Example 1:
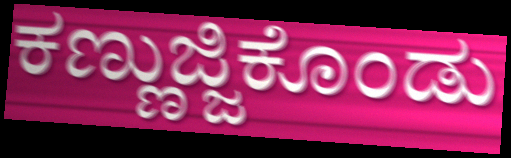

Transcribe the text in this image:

ಕಣ್ಣುಜ್ಜಿಕೊಂಡು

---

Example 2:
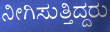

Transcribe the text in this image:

ನೀಗಿಸುತ್ತಿದ್ದರು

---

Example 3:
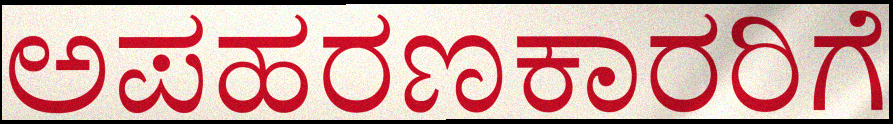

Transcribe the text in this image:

ಅಪಹರಣಕಾರರಿಗೆ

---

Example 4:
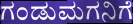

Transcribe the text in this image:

ಗಂಡುಮಗನಿಗೆ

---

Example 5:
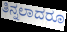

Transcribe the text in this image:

ತಿನ್ನಲಾದರೂ